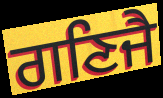
ਗਣਿਜੈ